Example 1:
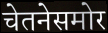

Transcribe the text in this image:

चेतनेसमोर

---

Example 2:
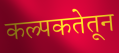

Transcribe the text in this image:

कल्पकतेतून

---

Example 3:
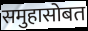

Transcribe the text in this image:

समुहासोबत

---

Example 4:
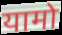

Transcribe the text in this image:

यामो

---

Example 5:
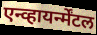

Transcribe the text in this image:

एन्व्हायर्न्मेंटल